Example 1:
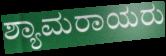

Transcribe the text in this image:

ಶ್ಯಾಮರಾಯರು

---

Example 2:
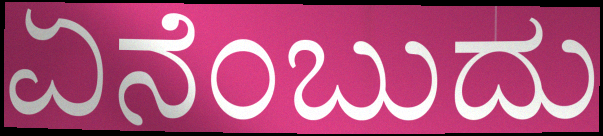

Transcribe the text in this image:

ಏನೆಂಬುದು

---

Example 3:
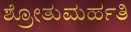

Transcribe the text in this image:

ಶ್ರೋತುಮರ್ಹತಿ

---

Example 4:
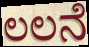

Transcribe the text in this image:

ಲಲನೆ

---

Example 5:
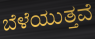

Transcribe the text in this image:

ಬೆಳೆಯುತ್ತವೆ